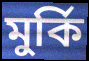
মুর্কি